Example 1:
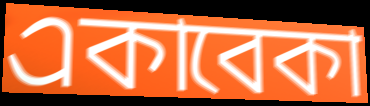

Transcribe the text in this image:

একাবেকা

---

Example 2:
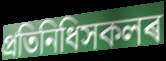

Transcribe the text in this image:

প্ৰতিনিধিসকলৰ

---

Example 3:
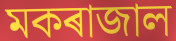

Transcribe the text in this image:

মকৰাজাল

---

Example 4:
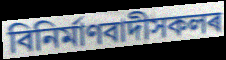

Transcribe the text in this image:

বিনিৰ্মাণবাদীসকলৰ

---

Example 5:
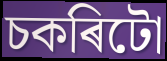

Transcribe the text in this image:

চকৰিটো